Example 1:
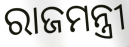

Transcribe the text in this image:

ରାଜମନ୍ତ୍ରୀ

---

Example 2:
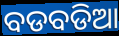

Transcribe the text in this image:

ବଡବଡିଆ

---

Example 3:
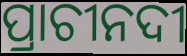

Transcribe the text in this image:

ପ୍ରାଚୀନଦୀ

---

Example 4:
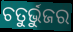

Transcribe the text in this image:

ଚତୁର୍ଭୁଜର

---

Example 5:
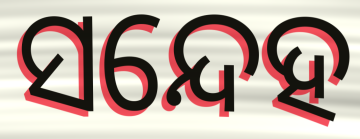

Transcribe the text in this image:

ସନ୍ଦେହ